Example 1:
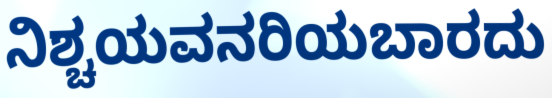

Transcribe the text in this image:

ನಿಶ್ಚಯವನರಿಯಬಾರದು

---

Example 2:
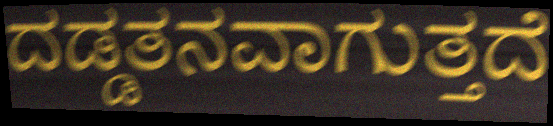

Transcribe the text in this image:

ದಡ್ಡತನವಾಗುತ್ತದೆ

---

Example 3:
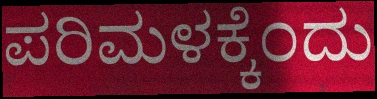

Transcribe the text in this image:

ಪರಿಮಳಕ್ಕೆಂದು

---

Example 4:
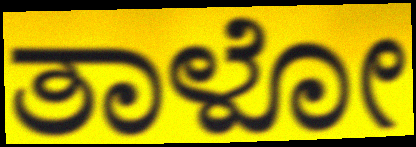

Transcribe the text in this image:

ತಾಳೋ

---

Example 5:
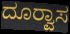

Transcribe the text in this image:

ದೂರ‍್ವಾಸ